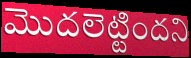
మొదలెట్టిందని